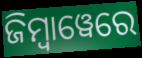
ଜିମ୍ୱାୱେରେ